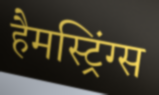
हैमस्ट्रिंग्स